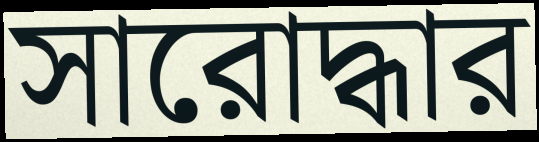
সারোদ্ধার